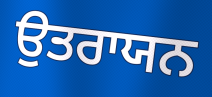
ਉਤਰਾਯਨ